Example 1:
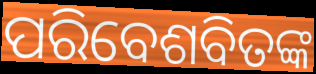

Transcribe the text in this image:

ପରିବେଶବିତଙ୍କ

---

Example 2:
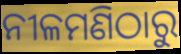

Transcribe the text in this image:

ନୀଳମଣିଠାରୁ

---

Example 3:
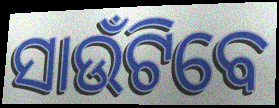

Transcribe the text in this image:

ସାଉଁଟିବେ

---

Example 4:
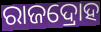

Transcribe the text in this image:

ରାଜଦ୍ରୋହ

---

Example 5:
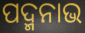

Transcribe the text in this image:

ପଦ୍ମନାଭ